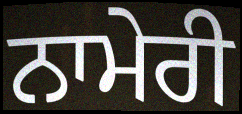
ਨਾਮੇਰੀ